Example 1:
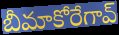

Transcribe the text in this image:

బీమాకోరేగావ్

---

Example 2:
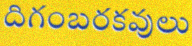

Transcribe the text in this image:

దిగంబరకవులు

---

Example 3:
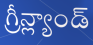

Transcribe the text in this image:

గ్రీన్ల్యాండ్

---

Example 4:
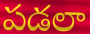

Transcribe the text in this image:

పడలా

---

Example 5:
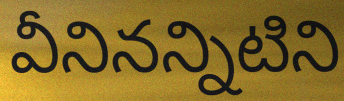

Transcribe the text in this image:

వీనినన్నిటిని